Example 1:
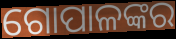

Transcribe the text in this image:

ଗୋପାଳଙ୍କର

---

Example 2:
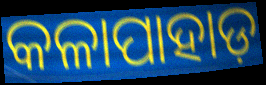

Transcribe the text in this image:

କଳାପାହାଡ଼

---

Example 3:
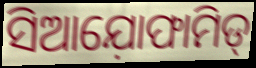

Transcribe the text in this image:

ସିଆଯ଼ୋଫାମିଡ୍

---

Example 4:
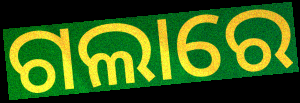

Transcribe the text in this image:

ଗଲାରେ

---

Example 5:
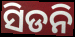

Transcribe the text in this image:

ସିଡନି